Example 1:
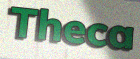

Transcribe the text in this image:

Theca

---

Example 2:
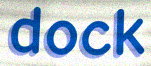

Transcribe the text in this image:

dock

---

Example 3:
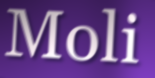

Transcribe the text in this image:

Moli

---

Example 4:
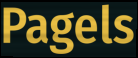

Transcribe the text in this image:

Pagels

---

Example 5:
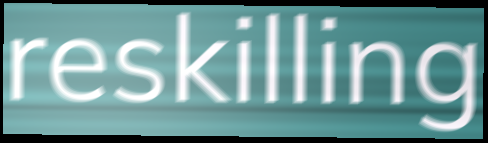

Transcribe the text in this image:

reskilling